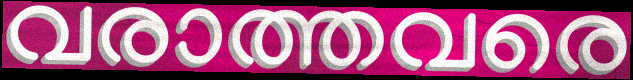
വരാത്തവരെ